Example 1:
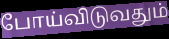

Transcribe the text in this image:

போய்விடுவதும்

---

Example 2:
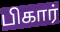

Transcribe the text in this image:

பிகார்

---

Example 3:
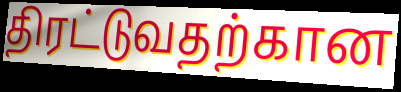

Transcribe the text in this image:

திரட்டுவதற்கான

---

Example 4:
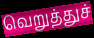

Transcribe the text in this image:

வெறுத்துச்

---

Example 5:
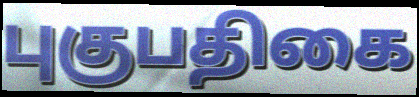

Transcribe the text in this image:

புகுபதிகை